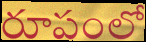
రూపంలో